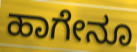
ಹಾಗೇನೂ